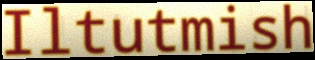
Iltutmish